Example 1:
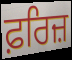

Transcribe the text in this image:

ਫ਼ਰਿਜ਼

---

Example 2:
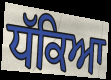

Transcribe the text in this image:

ਧੱਕਿਆ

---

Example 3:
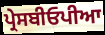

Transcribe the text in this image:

ਪ੍ਰੇਸਬੀਓਪੀਆ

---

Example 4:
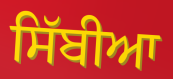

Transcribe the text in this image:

ਸਿੱਬੀਆ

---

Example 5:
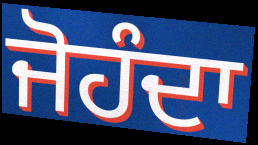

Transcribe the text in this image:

ਜੋਹੰਦਾ